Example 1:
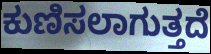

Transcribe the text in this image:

ಕುಣಿಸಲಾಗುತ್ತದೆ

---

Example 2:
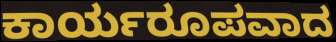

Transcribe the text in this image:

ಕಾರ್ಯರೂಪವಾದ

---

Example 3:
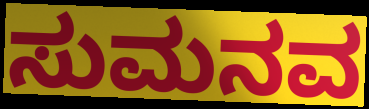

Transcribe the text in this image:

ಸುಮನವ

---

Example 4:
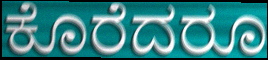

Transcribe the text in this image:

ಕೊರೆದರೂ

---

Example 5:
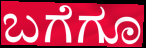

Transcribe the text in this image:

ಬಗೆಗೂ